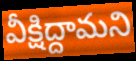
వీక్షిద్దామని